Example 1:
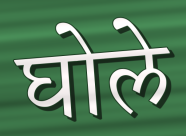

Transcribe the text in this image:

घोले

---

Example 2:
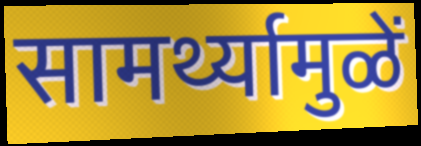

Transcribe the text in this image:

सामर्थ्यामुळें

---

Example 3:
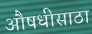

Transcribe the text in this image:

औषधीसाठा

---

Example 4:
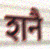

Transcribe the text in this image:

शनै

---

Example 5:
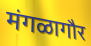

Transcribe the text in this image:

मंगळागौर